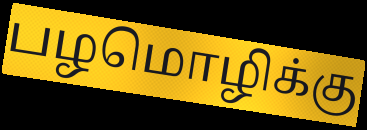
பழமொழிக்கு